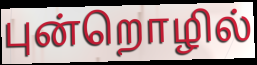
புன்றொழில்